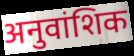
अनुवांशिक